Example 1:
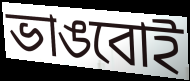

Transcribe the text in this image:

ভাঙবোই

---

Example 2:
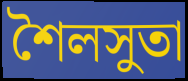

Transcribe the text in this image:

শৈলসুতা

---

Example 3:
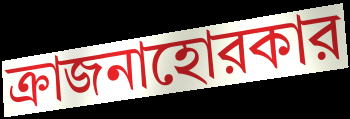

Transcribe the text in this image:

ক্রাজনাহোরকার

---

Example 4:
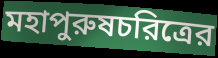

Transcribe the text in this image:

মহাপুরুষচরিত্রের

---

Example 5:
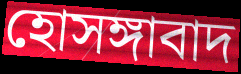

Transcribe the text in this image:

হোসঙ্গাবাদ